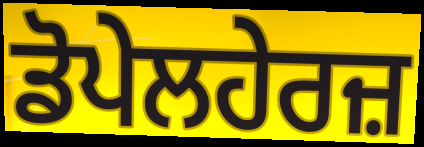
ਡੋਪੇਲਹੇਰਜ਼